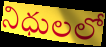
నిధులలో